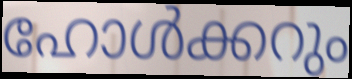
ഹോൾക്കറും